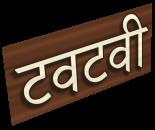
टवटवी